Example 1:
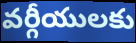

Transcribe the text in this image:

వర్గీయులకు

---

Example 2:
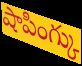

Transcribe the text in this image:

షాపింగ్కు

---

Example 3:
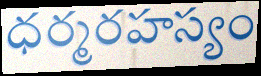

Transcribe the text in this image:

ధర్మరహస్యం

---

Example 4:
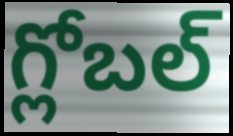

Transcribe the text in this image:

గ్లోబల్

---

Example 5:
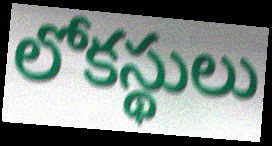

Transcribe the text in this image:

లోకస్థులు